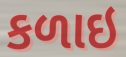
કળાઇ